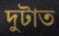
দুটাত